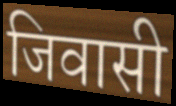
जिवासी